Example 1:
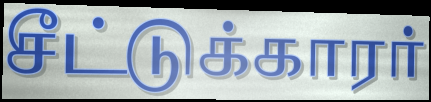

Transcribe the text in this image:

சீட்டுக்காரர்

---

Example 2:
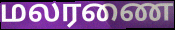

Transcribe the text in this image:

மலரணை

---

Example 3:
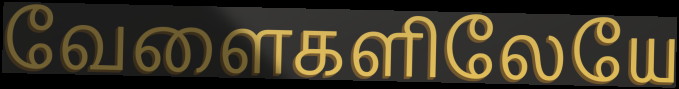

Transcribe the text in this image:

வேளைகளிலேயே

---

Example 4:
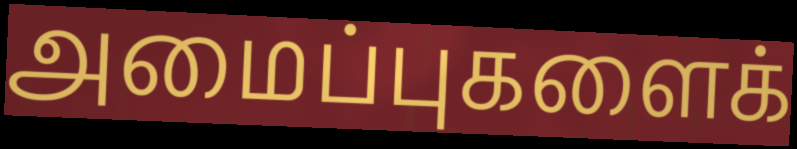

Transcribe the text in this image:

அமைப்புகளைக்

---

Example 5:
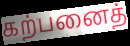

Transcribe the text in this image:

கற்பனைத்